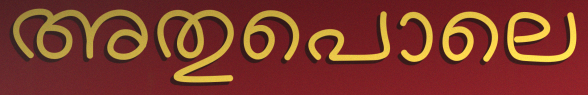
അതുപൊലെ